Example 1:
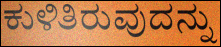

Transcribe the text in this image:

ಕುಳಿತಿರುವುದನ್ನು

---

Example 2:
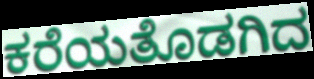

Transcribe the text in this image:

ಕರೆಯತೊಡಗಿದ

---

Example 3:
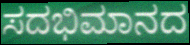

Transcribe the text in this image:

ಸದಭಿಮಾನದ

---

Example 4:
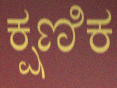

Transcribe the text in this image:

ಕ್ಷಣಿಕ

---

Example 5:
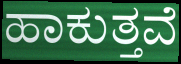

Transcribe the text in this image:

ಹಾಕುತ್ತವೆ